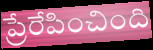
ప్రేరేపించింది